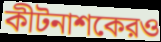
কীটনাশকেরও